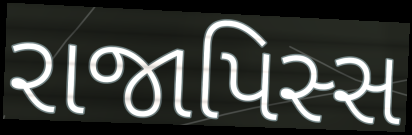
રાજાપિસ્સ